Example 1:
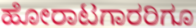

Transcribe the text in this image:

ಹೋರಾಟಗಾರರಿಗೂ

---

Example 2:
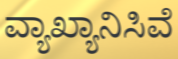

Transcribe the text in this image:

ವ್ಯಾಖ್ಯಾನಿಸಿವೆ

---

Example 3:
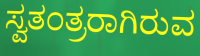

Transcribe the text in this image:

ಸ್ವತಂತ್ರರಾಗಿರುವ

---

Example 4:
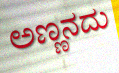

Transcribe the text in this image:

ಅಣ್ಣನದು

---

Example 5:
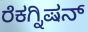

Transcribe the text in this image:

ರೆಕಗ್ನಿಷನ್